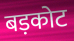
बड़कोट